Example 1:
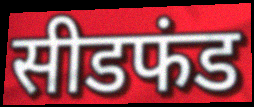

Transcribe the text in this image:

सीडफंड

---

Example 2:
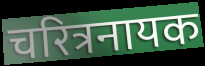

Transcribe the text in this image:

चरित्रनायक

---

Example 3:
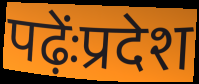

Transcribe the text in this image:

पढ़ेंःप्रदेश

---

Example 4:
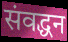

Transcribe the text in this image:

संवद्धन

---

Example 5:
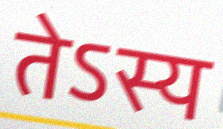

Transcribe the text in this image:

तेऽस्य